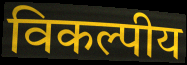
विकल्पीय